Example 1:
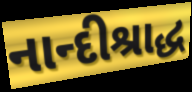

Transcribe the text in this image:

નાન્દીશ્રાદ્ધ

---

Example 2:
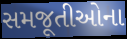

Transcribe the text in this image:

સમજૂતીઓના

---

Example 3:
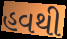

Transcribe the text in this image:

હવથી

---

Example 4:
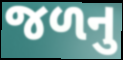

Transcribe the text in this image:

જળનુ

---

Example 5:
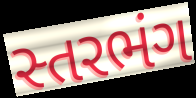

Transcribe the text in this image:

સ્તરભંગ